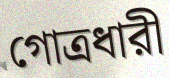
গোত্রধারী